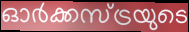
ഓർക്കസ്ട്രയുടെ